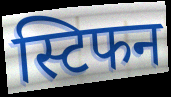
स्टिफन